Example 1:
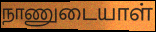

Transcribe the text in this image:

நாணுடையாள்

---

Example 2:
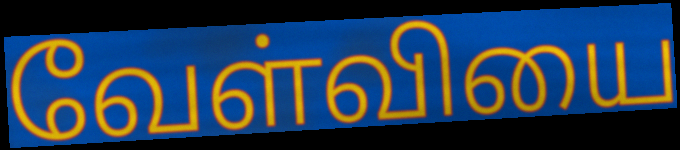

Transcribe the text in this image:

வேள்வியை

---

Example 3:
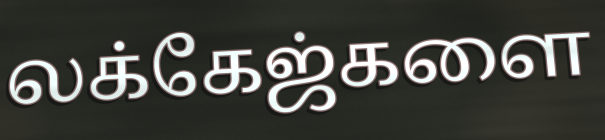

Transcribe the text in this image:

லக்கேஜ்களை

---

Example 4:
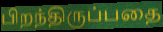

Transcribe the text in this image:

பிறந்திருப்பதை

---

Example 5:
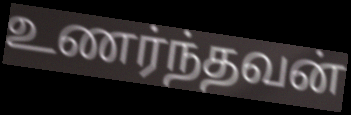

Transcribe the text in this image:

உணர்ந்தவன்